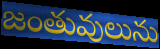
జంతువులును